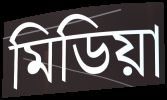
মিডিয়া